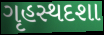
ગૃહસ્થદશા